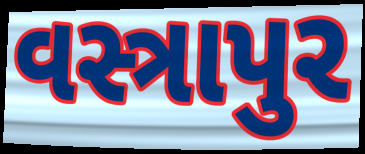
વસ્ત્રાપુર